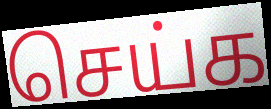
செய்க